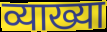
व्याख्या